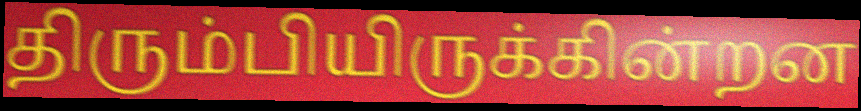
திரும்பியிருக்கின்றன